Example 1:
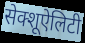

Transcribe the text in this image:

सेक्शूऐलिटी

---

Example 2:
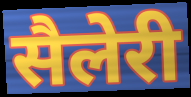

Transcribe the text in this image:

सैलेरी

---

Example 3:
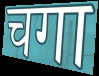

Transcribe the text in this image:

चगा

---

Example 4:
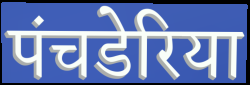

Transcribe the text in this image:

पंचडेरिया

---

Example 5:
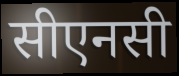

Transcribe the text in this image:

सीएनसी